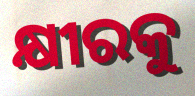
କ୍ଷୀରକୁ